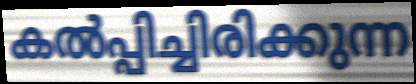
കൽപ്പിച്ചിരിക്കുന്ന